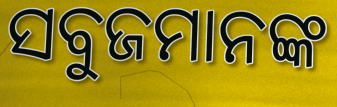
ସବୁଜମାନଙ୍କ